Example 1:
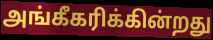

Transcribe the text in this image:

அங்கீகரிக்கின்றது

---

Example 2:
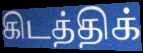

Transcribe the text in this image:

கிடத்திக்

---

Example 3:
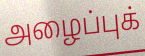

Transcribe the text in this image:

அழைப்புக்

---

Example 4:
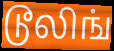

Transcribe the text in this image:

டூலிங்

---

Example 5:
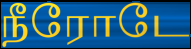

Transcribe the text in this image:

நீரோடே